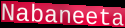
Nabaneeta